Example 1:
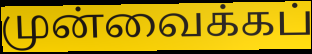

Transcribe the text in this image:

முன்வைக்கப்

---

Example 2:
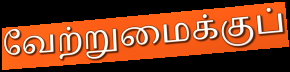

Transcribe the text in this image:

வேற்றுமைக்குப்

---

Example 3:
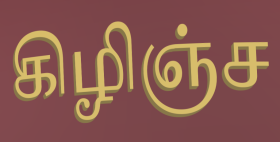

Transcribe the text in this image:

கிழிஞ்ச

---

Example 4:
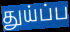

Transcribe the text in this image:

துய்ப்ப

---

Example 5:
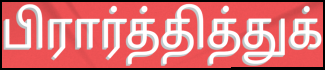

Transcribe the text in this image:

பிரார்த்தித்துக்